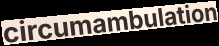
circumambulation